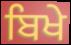
ਬਿਖੇ